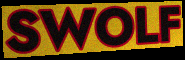
SWOLF